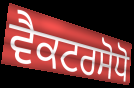
ਵੈਕਟਰਸੋਧੋ